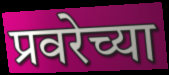
प्रवरेच्या